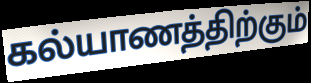
கல்யாணத்திற்கும்